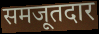
समजूतदार